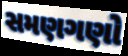
સમણગણો